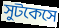
সুটকেসে